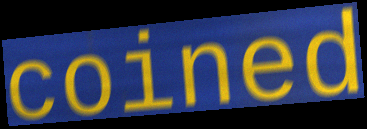
coined